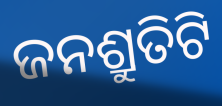
ଜନଶ୍ରୁତିଟି